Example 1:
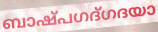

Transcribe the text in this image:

ബാഷ്പഗദ്ഗദയാ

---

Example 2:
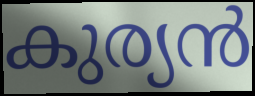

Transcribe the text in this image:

കുര്യൻ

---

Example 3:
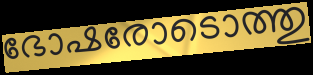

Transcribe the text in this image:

ഭോഷരോടൊത്തു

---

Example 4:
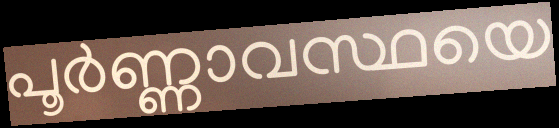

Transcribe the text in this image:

പൂർണ്ണാവസ്ഥയെ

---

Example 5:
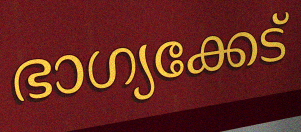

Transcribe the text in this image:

ഭാഗ്യക്കേട്